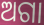
ଅଗା